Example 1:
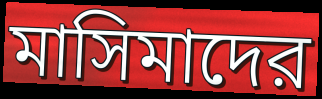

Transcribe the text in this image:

মাসিমাদের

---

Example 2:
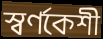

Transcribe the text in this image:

স্বর্ণকেশী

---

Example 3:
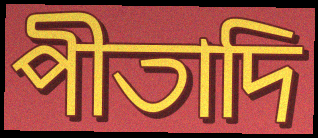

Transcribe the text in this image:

পীতাদি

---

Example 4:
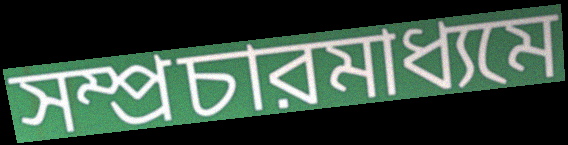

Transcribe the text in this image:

সম্প্রচারমাধ্যমে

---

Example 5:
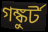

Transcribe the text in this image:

গঙ্কুর্ট